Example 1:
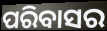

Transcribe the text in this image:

ପରିବାସର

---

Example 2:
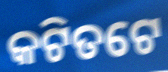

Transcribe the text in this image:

କଟିତଟେ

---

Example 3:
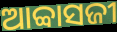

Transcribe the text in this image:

ଆବ୍ବାସଜୀ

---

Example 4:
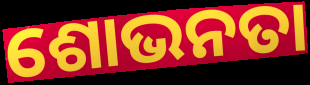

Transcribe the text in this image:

ଶୋଭନତା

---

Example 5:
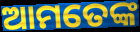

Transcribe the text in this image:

ଆମତେଙ୍କ